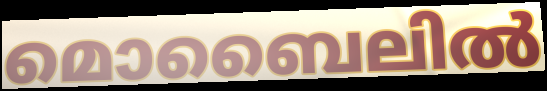
മൊബൈലിൽ